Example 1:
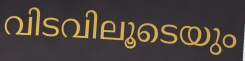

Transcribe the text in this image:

വിടവിലൂടെയും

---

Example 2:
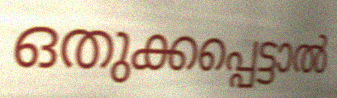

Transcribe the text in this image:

ഒതുക്കപ്പെട്ടാൽ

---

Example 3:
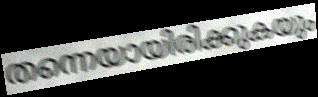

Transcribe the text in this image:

തന്നെയായിരിക്കുകയും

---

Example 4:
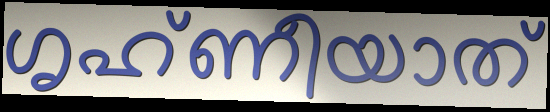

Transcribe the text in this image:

ഗൃഹ്ണീയാത്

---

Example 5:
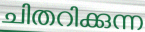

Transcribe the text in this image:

ചിതറിക്കുന്ന